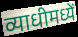
व्याधीमध्यें